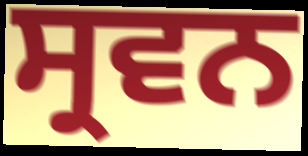
ਸ੍ਰਵਨ